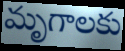
మృగాలకు